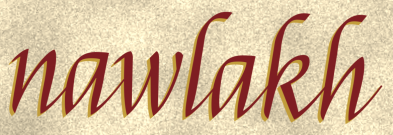
nawlakh